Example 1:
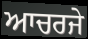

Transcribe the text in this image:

ਆਚਰਜੇ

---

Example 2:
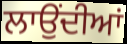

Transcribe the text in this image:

ਲਾਉਂਦੀਆਂ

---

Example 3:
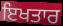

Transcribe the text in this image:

ਇਖਤਾਰ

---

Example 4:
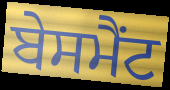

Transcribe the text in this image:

ਬੇਸਮੈਂਟ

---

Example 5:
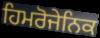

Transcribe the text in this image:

ਹਿਮਰੋਜੇਨਿਕ